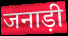
जनाड़ी